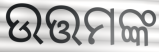
ଉତ୍ତମଙ୍କ